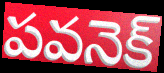
పవనెక్